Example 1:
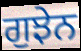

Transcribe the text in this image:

ਗੁਝੇਨ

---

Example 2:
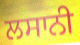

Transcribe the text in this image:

ਲਸਾਨੀ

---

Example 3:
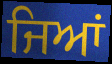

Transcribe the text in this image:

ਜਿਆਂ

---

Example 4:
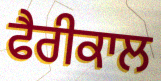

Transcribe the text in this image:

ਫੈਰੀਕਾਲ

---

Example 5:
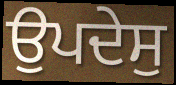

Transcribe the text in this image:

ਉਪਦੇਸੁ